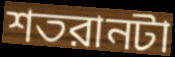
শতরানটা